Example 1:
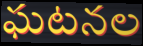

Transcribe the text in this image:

ఘటనల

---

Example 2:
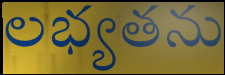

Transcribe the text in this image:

లభ్యతను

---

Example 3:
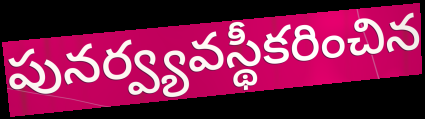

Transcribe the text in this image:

పునర్వ్యవస్థీకరించిన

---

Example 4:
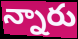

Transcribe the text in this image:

న్నారు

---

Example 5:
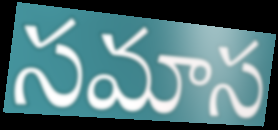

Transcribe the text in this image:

సమాస